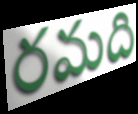
రమది